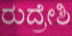
ರುದ್ರೇಶಿ